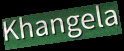
Khangela